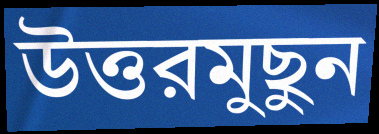
উত্তরমুছুন